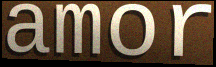
amor